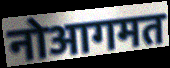
नोआगमत